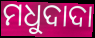
ମଧୁଦାଦା